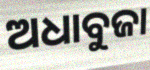
ଅଧାବୁଜା